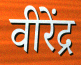
वीरेंद्र